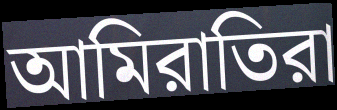
আমিরাতিরা